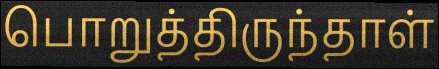
பொறுத்திருந்தாள்